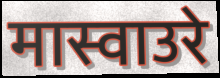
मास्वाउरे